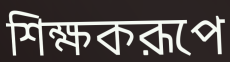
শিক্ষকরূপে